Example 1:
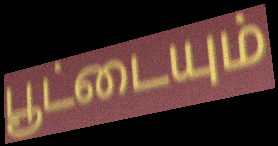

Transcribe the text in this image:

பூட்டையும்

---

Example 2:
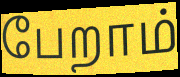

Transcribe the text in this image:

பேறாம்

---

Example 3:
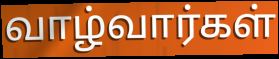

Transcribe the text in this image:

வாழ்வார்கள்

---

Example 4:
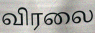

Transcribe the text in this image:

விரலை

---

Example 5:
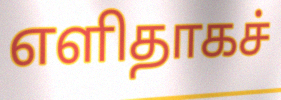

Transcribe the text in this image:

எளிதாகச்